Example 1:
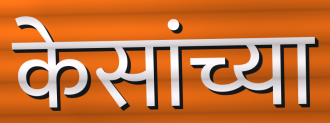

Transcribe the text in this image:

केसांच्या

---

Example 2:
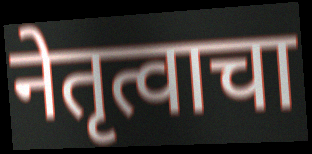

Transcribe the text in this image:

नेतृत्वाचा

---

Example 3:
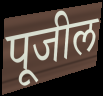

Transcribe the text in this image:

पूजील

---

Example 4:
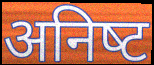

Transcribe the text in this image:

अनिष्‍ट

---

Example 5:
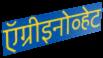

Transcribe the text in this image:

ऍग्रीइनोव्हेट